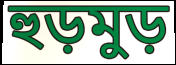
হুড়মুড়